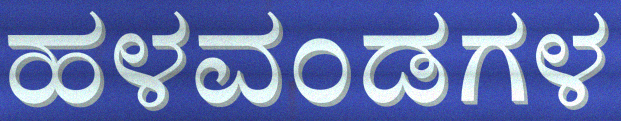
ಹಳವಂಡಗಳ